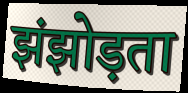
झंझोड़ता